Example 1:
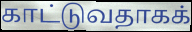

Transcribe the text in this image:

காட்டுவதாகக்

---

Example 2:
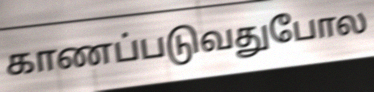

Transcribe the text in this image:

காணப்படுவதுபோல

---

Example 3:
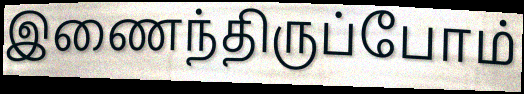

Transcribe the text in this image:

இணைந்திருப்போம்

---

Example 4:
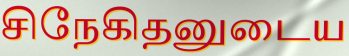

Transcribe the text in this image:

சிநேகிதனுடைய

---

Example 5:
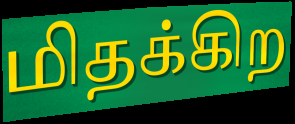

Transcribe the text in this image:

மிதக்கிற